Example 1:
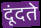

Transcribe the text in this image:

दूंदते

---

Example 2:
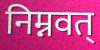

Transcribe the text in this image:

निम्नवत्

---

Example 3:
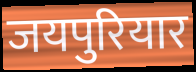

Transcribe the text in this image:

जयपुरियार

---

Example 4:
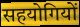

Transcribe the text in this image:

सहयोगियों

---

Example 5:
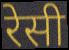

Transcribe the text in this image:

रेसी